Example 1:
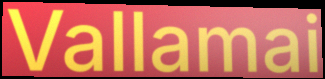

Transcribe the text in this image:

Vallamai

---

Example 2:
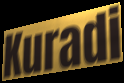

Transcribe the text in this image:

Kuradi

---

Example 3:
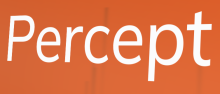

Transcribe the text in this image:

Percept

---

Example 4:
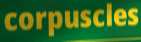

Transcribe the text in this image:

corpuscles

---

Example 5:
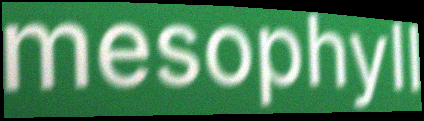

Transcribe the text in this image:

mesophyll